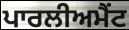
ਪਾਰਲੀਅਮੈਂਟ